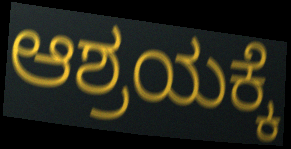
ಆಶ್ರಯಕ್ಕೆ